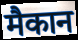
मैकान